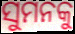
ସୁମନକୁ